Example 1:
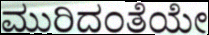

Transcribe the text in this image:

ಮುರಿದಂತೆಯೇ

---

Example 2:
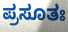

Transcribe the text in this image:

ಪ್ರಸೂತಃ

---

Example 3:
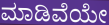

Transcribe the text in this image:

ಮಾಡಿವೆಯೇ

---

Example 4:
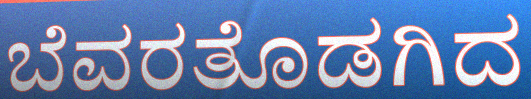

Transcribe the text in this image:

ಬೆವರತೊಡಗಿದ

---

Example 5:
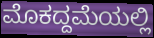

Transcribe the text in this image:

ಮೊಕದ್ದಮೆಯಲ್ಲಿ